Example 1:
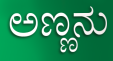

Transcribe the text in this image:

ಅಣ್ಣನು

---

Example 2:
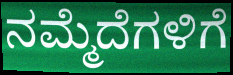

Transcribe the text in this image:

ನಮ್ಮೆದೆಗಳಿಗೆ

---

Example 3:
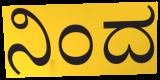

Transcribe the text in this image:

ನಿಂದ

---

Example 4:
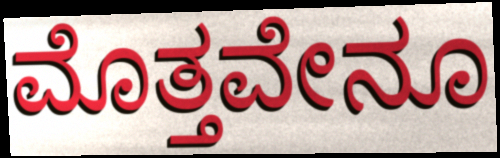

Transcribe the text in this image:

ಮೊತ್ತವೇನೂ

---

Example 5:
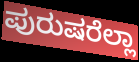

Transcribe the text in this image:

ಪುರುಷರೆಲ್ಲಾ